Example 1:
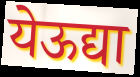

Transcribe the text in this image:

येऊद्या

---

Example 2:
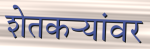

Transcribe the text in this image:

शेतकऱ्यांवर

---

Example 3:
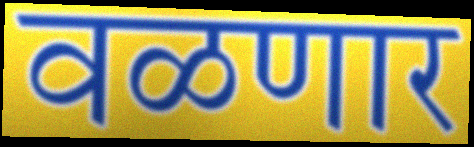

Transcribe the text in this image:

वळणार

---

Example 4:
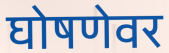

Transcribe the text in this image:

घोषणेवर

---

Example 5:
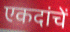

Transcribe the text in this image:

एकदांचें